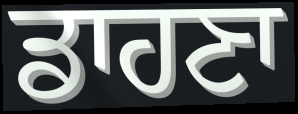
ਡਾਹਣਾ